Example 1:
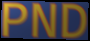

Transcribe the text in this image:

PND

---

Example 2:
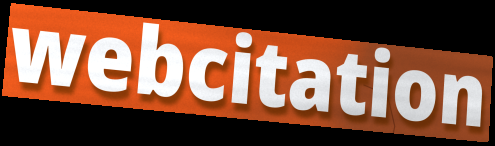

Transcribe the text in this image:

webcitation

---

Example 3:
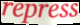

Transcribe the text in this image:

repress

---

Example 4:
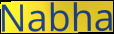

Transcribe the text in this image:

Nabha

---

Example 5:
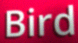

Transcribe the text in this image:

Bird